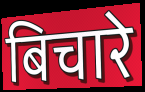
बिचारे